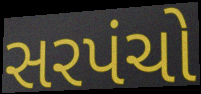
સરપંચો